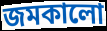
জমকালো